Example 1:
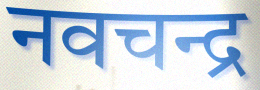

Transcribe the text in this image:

नवचन्द्र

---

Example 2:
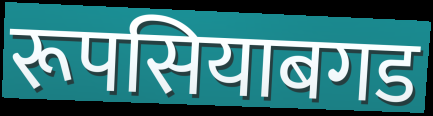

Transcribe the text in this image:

रूपसियाबगड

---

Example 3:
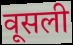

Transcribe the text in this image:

वूसली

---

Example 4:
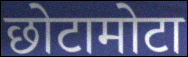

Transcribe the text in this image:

छोटामोटा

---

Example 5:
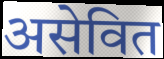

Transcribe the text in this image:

असेवित